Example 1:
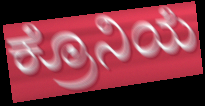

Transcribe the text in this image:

ಕ್ರೊನಿಯೆ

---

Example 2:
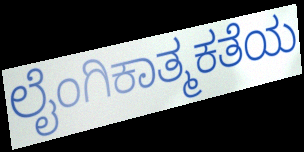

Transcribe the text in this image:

ಲೈಂಗಿಕಾತ್ಮಕತೆಯ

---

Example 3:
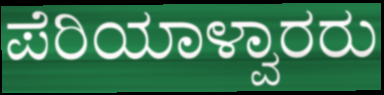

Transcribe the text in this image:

ಪೆರಿಯಾಳ್ವಾರರು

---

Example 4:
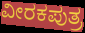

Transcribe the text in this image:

ವೀರಕಪುತ್ರ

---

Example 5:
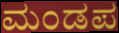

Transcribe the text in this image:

ಮಂಡಪ